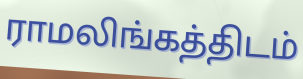
ராமலிங்கத்திடம்